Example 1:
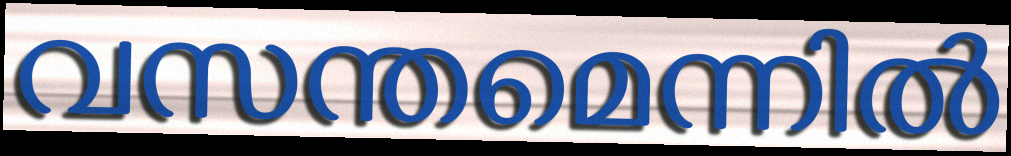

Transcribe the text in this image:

വസന്തമെന്നിൽ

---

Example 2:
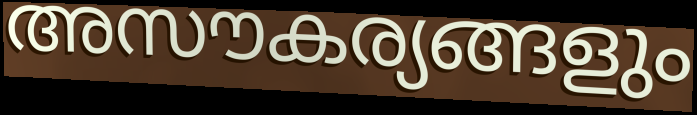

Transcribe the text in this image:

അസൗകര്യങ്ങളും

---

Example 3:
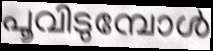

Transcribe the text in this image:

പൂവിടുമ്പോൾ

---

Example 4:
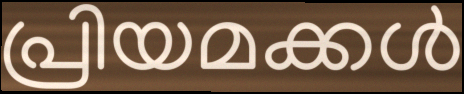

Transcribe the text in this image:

പ്രിയമക്കൾ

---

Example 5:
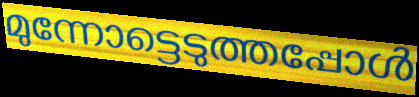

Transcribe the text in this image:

മുന്നോട്ടെടുത്തപ്പോൾ